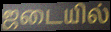
ஜடையில்